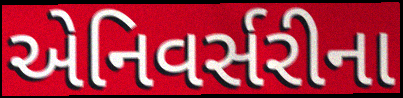
એનિવર્સરીના